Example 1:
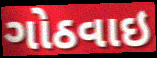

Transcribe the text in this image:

ગોઠવાઇ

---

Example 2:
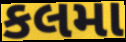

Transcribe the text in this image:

કલમા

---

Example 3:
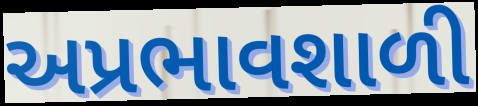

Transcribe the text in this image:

અપ્રભાવશાળી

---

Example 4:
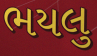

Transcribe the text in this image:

ભયલુ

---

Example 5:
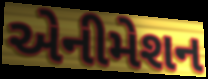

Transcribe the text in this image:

એનીમેશન